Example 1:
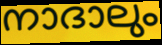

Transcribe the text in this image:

നാദാലും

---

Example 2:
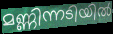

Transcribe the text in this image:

മണ്ണിന്നടിയിൽ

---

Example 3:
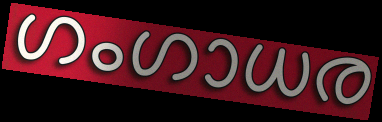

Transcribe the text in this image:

ഗംഗാധര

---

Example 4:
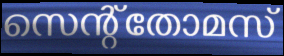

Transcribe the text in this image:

സെന്റ്തോമസ്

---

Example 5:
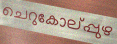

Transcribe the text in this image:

ചെറുകോല്പ്പുഴ